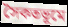
সৈকতভূমে